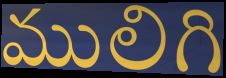
ములిగి